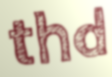
thd